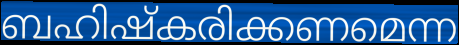
ബഹിഷ്കരിക്കണമെന്ന